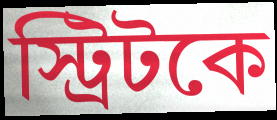
স্ট্রিটকে